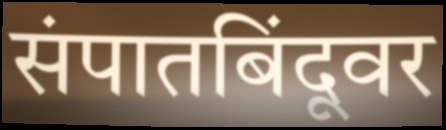
संपातबिंदूवर